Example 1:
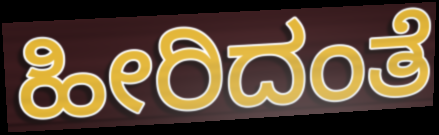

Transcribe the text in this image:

ಹೀರಿದಂತೆ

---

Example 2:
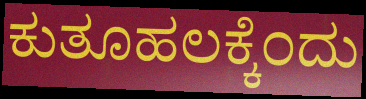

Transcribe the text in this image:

ಕುತೂಹಲಕ್ಕೆಂದು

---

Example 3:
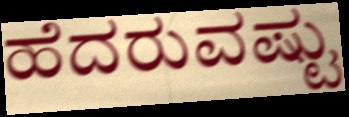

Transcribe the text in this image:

ಹೆದರುವಷ್ಟು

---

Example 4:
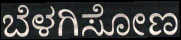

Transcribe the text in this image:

ಬೆಳಗಿಸೋಣ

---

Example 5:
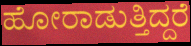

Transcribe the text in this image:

ಹೋರಾಡುತ್ತಿದ್ದರೆ